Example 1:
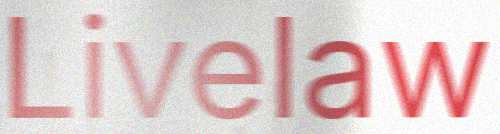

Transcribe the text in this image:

Livelaw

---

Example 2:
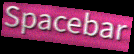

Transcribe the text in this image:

Spacebar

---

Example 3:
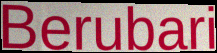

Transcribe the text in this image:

Berubari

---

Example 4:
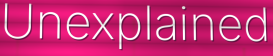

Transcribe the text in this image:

Unexplained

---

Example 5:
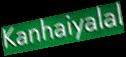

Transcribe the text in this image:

Kanhaiyalal